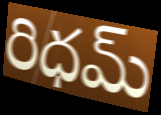
రిధమ్